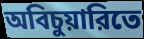
অবিচুয়ারিতে